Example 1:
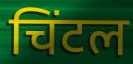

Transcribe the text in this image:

चिंटल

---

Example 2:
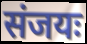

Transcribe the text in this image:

संजयः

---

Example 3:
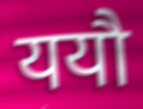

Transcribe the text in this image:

ययौ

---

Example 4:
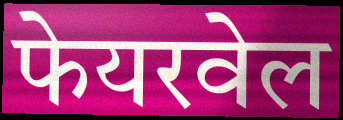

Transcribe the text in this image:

फेयरवेल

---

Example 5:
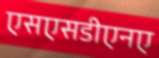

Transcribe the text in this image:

एसएसडीएनए